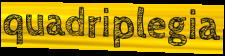
quadriplegia